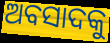
ଅବସାଦକୁ